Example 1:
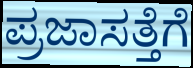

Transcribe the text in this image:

ಪ್ರಜಾಸತ್ತೆಗೆ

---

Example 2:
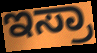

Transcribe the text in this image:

ಇಸ್ರಾ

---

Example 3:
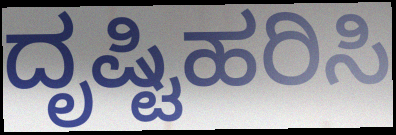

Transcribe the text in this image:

ದೃಷ್ಟಿಹರಿಸಿ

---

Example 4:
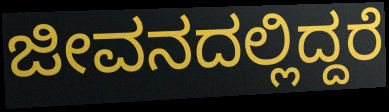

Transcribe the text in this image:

ಜೀವನದಲ್ಲಿದ್ದರೆ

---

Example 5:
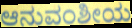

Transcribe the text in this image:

ಆನುವಂಶೀಯ